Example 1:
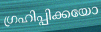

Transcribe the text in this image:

ഗ്രഹിപ്പിക്കയോ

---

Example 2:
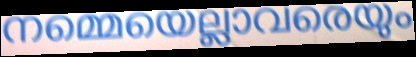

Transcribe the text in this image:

നമ്മെയെല്ലാവരെയും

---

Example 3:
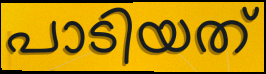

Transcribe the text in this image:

പാടിയത്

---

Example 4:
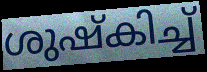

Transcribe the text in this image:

ശുഷ്കിച്ച്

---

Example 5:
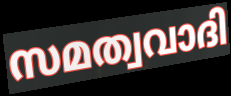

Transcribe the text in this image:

സമത്വവാദി